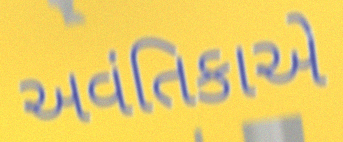
અવંતિકાએ